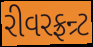
રીવરફ્રન્ર્ટ